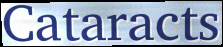
Cataracts